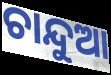
ଚାନ୍ଦୁଆ